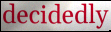
decidedly